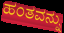
ಹಂತವನ್ನು